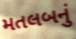
મતલબનું